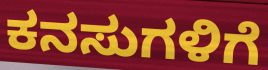
ಕನಸುಗಳಿಗೆ